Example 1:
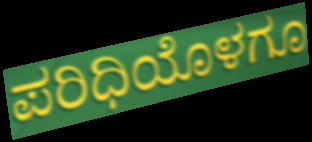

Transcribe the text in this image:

ಪರಿಧಿಯೊಳಗೂ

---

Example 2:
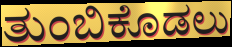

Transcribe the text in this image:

ತುಂಬಿಕೊಡಲು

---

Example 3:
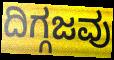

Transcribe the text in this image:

ದಿಗ್ಗಜವು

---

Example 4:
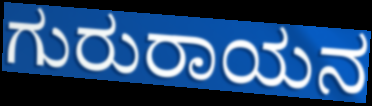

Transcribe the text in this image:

ಗುರುರಾಯನ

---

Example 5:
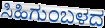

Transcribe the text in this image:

ಸಿಹಿಗುಂಬಳದ